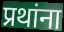
प्रथांना